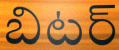
బిటర్